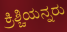
ಕ್ರಿಶ್ಚಿಯನ್ನರು